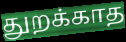
துறக்காத